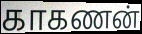
காகணன்